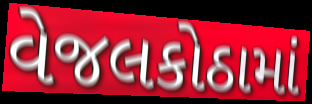
વેજલકોઠામાં